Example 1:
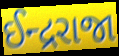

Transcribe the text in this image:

ઈન્દ્રરાજા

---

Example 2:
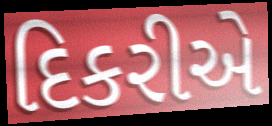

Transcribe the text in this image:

દિકરીએ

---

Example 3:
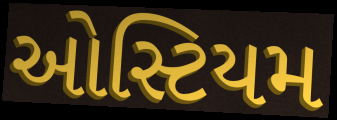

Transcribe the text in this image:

ઓસ્ટિયમ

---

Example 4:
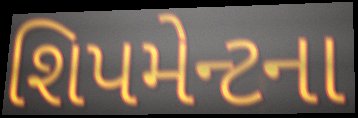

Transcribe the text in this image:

શિપમેન્ટના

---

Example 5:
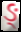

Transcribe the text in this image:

ઙ્